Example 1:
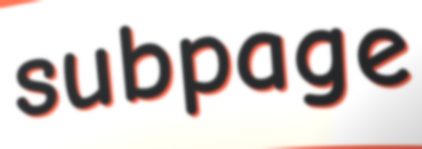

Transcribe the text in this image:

subpage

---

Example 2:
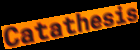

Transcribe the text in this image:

Catathesis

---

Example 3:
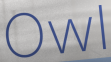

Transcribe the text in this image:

Owl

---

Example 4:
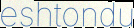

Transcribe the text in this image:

eshtondu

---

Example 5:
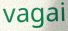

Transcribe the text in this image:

vagai